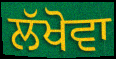
ਲੱਖੋਵਾ